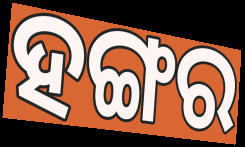
ହଙ୍ଗର